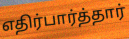
எதிர்பார்த்தார்